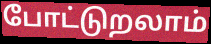
போட்டுறலாம்